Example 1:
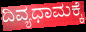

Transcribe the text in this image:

ದಿವ್ಯಧಾಮಕ್ಕೆ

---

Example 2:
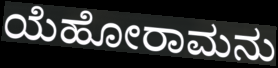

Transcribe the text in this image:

ಯೆಹೋರಾಮನು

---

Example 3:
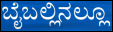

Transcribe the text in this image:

ಬೈಬಲ್ಲಿನಲ್ಲೂ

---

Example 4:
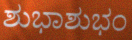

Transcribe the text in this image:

ಶುಭಾಶುಭಂ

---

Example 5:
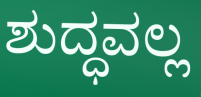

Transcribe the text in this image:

ಶುದ್ಧವಲ್ಲ